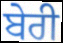
ਬੇਰੀ